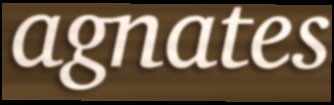
agnates